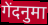
गेंदनुमा